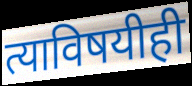
त्याविषयीही